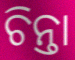
ଚିନ୍ତା